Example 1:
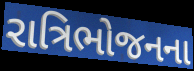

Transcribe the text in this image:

રાત્રિભોજનના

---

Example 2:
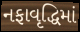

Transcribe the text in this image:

નફાવૃદ્ધિમાં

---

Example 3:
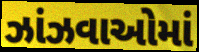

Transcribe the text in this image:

ઝાંઝવાઓમાં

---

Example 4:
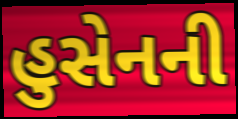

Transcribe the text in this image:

હુસેનની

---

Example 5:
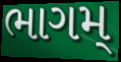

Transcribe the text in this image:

ભાગમ્